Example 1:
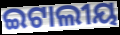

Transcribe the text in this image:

ଇଟାଲୀୟ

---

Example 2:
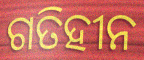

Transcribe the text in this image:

ଗତିହୀନ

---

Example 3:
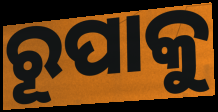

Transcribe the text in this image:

ରୂପାକୁ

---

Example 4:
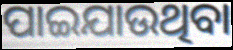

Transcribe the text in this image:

ପାଇଯାଉଥିବା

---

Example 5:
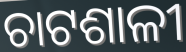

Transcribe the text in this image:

ଚାଟଶାଳୀ